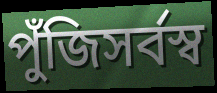
পুঁজিসর্বস্ব